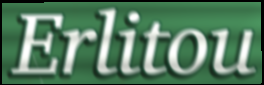
Erlitou